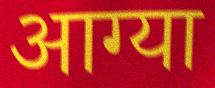
आग्या